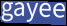
gayee